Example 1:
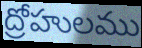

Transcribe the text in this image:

ద్రోహులము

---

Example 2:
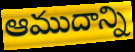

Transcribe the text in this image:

ఆముదాన్ని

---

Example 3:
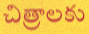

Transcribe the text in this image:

చిత్రాలకు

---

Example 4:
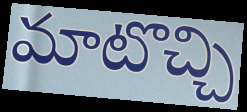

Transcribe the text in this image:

మాటొచ్చి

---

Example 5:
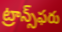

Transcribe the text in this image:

ట్రాన్స్‌ఫరు